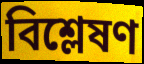
বিশ্লেষণ